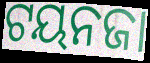
ଟୟନଜା